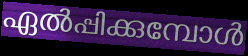
ഏൽപ്പിക്കുമ്പോൾ